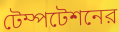
টেম্পটেশনের